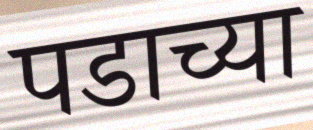
पडाच्या